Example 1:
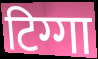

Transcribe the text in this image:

टिग्गा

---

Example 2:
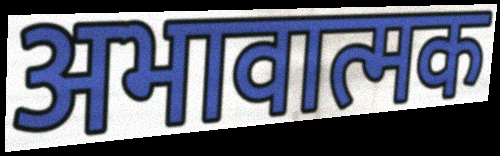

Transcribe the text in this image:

अभावात्मक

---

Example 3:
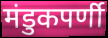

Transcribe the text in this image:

मंडुकपर्णी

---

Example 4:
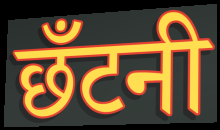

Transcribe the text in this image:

छँटनी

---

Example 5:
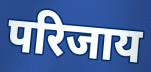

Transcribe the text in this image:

परिजाय